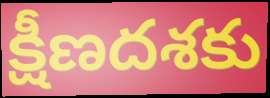
క్షీణదశకు